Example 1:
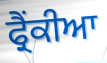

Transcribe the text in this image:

ਫ੍ਰੈਂਕੀਆ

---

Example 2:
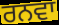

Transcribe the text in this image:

ਰਨਵਾ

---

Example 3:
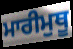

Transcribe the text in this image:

ਮਾਰੀਮੁਥੂ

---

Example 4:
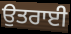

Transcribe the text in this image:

ਉਤਰਾਈ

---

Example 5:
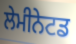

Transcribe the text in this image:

ਲੇਮੀਨੇਟਡ